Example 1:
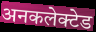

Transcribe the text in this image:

अनकलेक्टेड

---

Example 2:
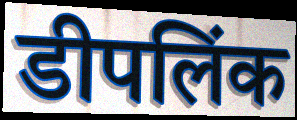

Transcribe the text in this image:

डीपलिंक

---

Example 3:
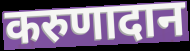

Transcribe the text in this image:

करुणादान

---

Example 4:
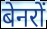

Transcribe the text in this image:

बेनरों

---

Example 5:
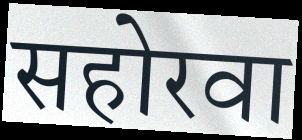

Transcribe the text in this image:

सहोरवा